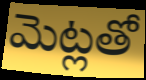
మెట్లతో